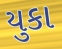
યુકા